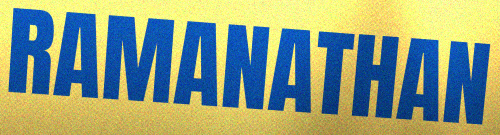
RAMANATHAN